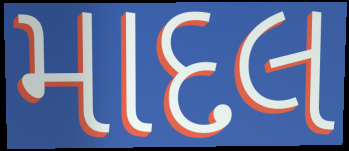
માદલ